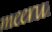
meeru